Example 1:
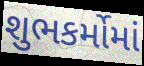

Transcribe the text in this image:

શુભકર્મોમાં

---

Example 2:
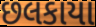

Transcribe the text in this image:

છલકાયા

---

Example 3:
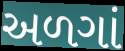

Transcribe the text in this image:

અળગાં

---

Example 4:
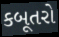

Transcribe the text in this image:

કબૂતરો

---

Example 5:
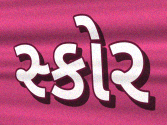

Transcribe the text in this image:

સ્કોર